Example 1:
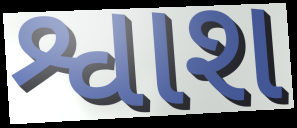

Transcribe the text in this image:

શ્વાશ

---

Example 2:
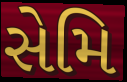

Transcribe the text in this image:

સેમિ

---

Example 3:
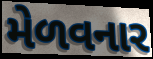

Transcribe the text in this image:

મેળવનાર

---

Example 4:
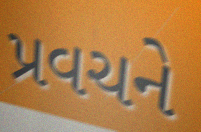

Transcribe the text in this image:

પ્રવચને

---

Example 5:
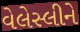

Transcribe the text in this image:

વેલેસ્લીને